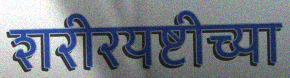
शरीरयष्टीच्या